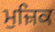
ਮੁਜ਼ਿਕ